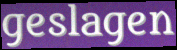
geslagen